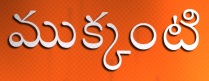
ముక్కంటి